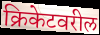
क्रिकेटवरील